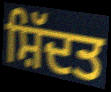
ਸ਼ਿੱਦਤ